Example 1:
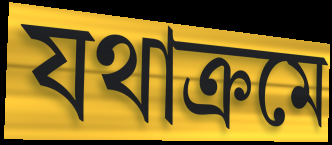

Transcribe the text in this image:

যথাক্রমে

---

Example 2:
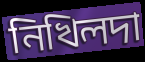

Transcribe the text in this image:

নিখিলদা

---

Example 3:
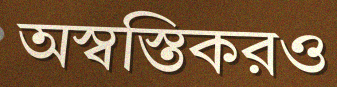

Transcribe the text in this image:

অস্বস্তিকরও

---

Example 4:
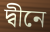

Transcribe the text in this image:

দ্বীনে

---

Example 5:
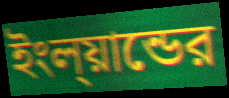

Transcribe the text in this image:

ইংল্য়ান্ডের